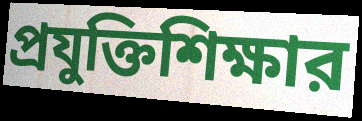
প্রযুক্তিশিক্ষার